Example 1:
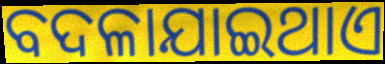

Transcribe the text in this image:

ବଦଳାଯାଇଥାଏ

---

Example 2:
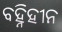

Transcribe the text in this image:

ବହ୍ନିହୀନ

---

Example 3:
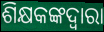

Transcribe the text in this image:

ଶିକ୍ଷକଙ୍କଦ୍ଵାରା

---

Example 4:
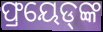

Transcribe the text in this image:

ଫ୍ରୟେଡ୍‍ଙ୍କ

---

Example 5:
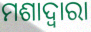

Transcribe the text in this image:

ମଶାଦ୍ୱାରା